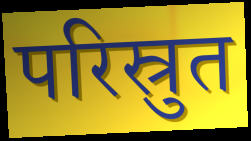
परिस्रुत